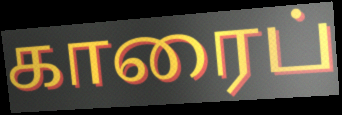
காரைப்